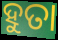
ହୁତା